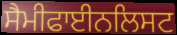
ਸੈਮੀਫਾਈਨਲਿਸਟ